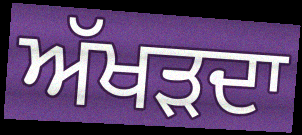
ਅੱਖੜਦਾ